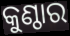
କୁଣ୍ଠାର